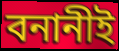
বনানীই